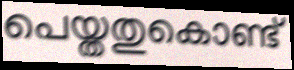
പെയ്തതുകൊണ്ട്